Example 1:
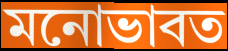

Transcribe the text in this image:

মনোভাবত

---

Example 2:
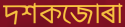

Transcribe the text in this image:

দশকজোৰা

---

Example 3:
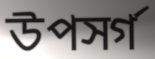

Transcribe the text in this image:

উপসৰ্গ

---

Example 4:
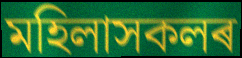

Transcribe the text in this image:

মহিলাসকলৰ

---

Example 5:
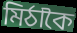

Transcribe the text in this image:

মিঠাকৈ